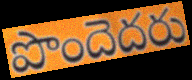
పొందెదరు